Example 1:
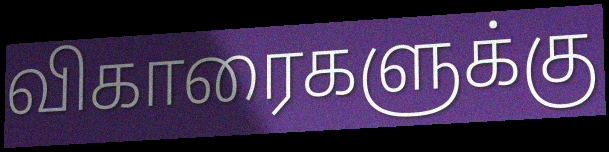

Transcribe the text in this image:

விகாரைகளுக்கு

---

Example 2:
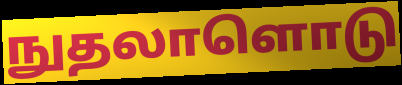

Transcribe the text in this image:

நுதலாளொடு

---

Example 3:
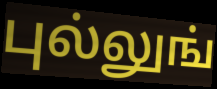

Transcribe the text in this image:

புல்லுங்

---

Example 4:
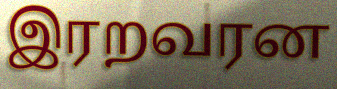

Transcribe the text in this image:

இரறவரன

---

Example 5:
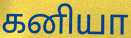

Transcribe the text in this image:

கனியா